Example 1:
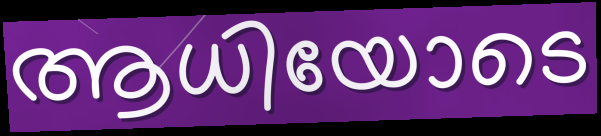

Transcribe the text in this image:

ആധിയോടെ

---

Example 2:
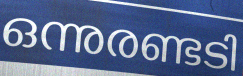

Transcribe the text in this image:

ഒന്നുരണ്ടടി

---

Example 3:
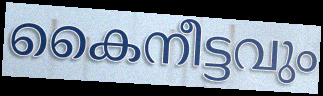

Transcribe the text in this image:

കൈനീട്ടവും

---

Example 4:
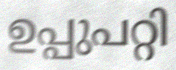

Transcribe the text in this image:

ഉപ്പുപറ്റി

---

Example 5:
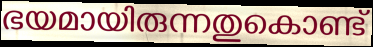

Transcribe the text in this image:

ഭയമായിരുന്നതുകൊണ്ട്